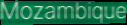
Mozambique